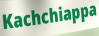
Kachchiappa